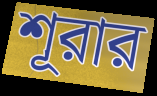
শূরার